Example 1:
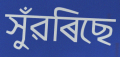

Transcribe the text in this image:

সুঁৱৰিছে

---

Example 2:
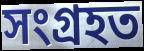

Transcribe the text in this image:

সংগ্ৰহত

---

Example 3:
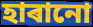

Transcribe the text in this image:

হাৰানো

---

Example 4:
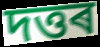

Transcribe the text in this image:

দত্তৰ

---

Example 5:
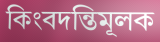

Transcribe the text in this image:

কিংবদন্তিমূলক